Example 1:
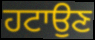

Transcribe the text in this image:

ਹਟਾਉਣ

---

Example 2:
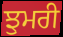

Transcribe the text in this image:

ਝੁਮਰੀ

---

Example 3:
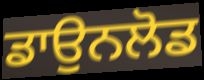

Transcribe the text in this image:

ਡਾਉਨਲੋਡ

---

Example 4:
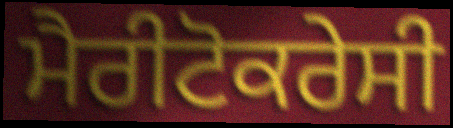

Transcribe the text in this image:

ਮੈਰੀਟੋਕਰੇਸੀ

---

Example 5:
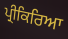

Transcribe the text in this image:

ਪ੍ਰੀਕਿਰਿਆ